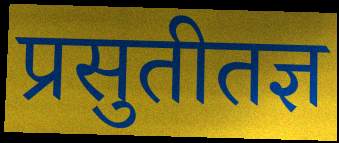
प्रसुतीतज्ञ